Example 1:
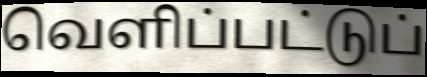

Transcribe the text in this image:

வெளிப்பட்டுப்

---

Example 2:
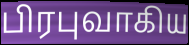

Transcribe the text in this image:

பிரபுவாகிய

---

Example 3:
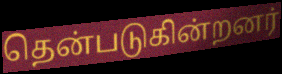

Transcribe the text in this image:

தென்படுகின்றனர்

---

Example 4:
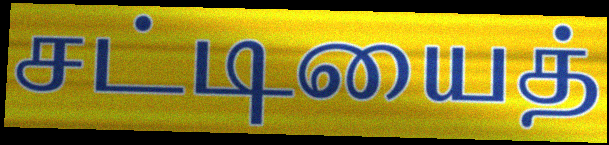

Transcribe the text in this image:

சட்டியைத்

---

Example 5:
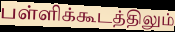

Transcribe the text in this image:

பள்ளிக்கூடத்திலும்